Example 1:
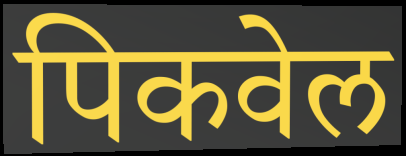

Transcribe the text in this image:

पिकवेल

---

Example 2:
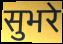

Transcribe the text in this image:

सुभरे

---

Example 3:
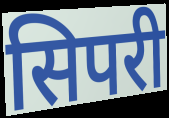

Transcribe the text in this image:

सिपरी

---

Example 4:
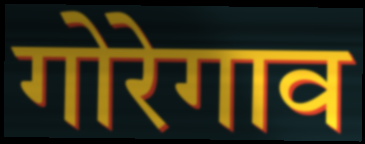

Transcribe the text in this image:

गोरेगाव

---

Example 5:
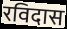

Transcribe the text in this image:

रविदास